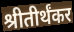
श्रीतीर्थंकर